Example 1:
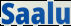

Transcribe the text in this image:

Saalu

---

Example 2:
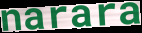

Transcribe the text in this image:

narara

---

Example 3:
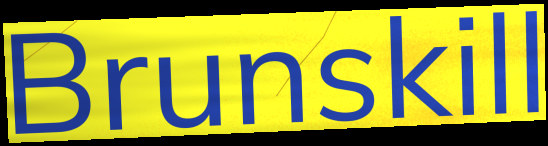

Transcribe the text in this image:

Brunskill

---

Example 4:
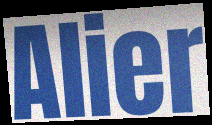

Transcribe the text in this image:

Alier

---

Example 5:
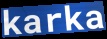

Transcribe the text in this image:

karka